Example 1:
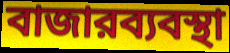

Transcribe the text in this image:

বাজারব্যবস্থা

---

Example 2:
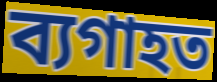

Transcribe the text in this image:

ব্যগাহত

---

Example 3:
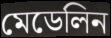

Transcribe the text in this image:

মেডেলিন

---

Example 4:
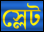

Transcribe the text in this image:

স্লেট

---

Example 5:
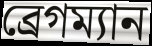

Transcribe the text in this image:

ব্রেগম্যান